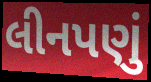
લીનપણું